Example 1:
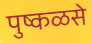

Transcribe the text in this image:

पुष्कळसे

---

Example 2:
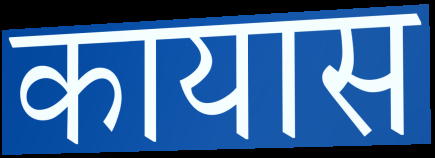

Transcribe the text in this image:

कायास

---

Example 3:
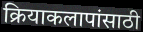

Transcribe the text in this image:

क्रियाकलापांसाठी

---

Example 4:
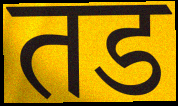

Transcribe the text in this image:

तड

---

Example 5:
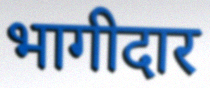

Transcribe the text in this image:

भागीदार